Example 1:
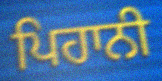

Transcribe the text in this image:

ਪਿਹਾਨੀ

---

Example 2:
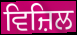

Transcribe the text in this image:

ਵਿਜ਼ਿਲ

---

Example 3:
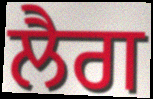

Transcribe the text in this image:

ਲੈਗ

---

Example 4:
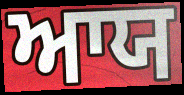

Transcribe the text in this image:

ਆਯ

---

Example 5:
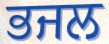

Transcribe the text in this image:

ਭਜਲ